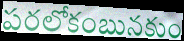
పరలోకంబునకుం